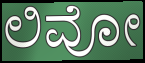
ಲಿವೋ